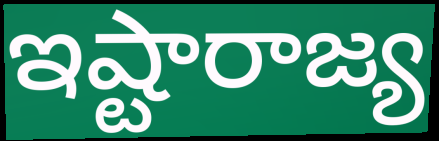
ఇష్టారాజ్య